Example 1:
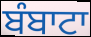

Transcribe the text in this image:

ਬੰਬਾਟਾ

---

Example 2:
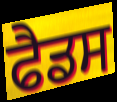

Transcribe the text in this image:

ਫੈਡਸ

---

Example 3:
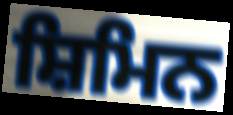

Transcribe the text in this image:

ਸ਼ਿਮਿਨ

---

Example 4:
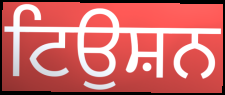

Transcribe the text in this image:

ਟਿਉਸ਼ਨ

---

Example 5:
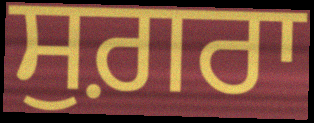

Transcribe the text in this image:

ਸੁਗ਼ਰਾ